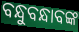
ବନ୍ଧୁବନ୍ଧାବଙ୍କ